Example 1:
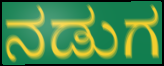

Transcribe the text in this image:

ನಡುಗ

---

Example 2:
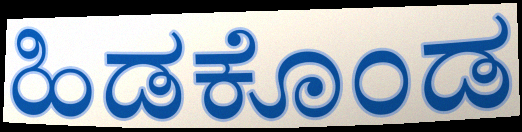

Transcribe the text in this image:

ಹಿಡಕೊಂಡ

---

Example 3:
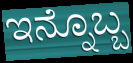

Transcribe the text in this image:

ಇನ್ನೊಬ್ಬ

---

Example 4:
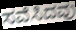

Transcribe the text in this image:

ಸವೆಸಿದವು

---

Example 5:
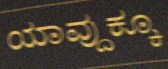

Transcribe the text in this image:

ಯಾವ್ದುಕ್ಕೂ